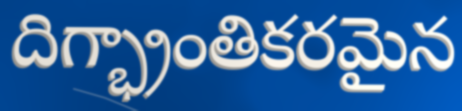
దిగ్భ్రాంతికరమైన